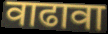
वाढावा